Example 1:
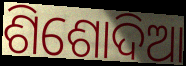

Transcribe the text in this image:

ଶିଶୋଦିଆ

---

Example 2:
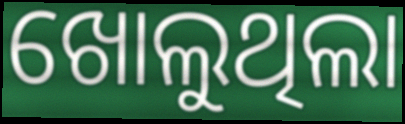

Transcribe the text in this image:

ଖୋଲୁଥିଲା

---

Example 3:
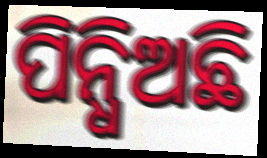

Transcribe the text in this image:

ପିନ୍ଧିଅଛି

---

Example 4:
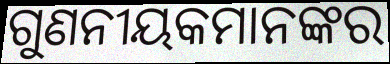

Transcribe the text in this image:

ଗୁଣନୀୟକମାନଙ୍କର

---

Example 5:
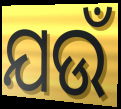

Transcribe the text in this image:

ଯଉଁ